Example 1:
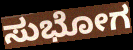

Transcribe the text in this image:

ಸುಭೋಗ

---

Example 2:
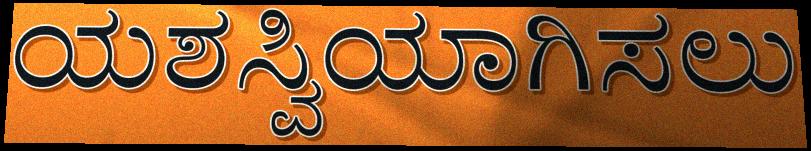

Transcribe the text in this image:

ಯಶಸ್ವಿಯಾಗಿಸಲು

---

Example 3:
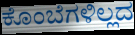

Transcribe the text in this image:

ಕೊಂಬೆಗಳಿಲ್ಲದ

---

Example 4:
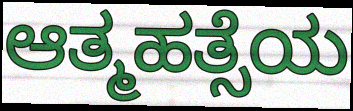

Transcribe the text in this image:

ಆತ್ಮಹತ್ಸೆಯ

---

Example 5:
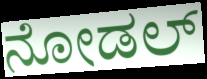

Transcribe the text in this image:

ನೋಡಲ್